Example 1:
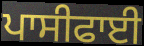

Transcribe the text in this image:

ਪਾਸੀਫਾਈ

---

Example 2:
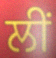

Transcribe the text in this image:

ਲੀਂ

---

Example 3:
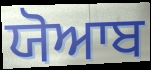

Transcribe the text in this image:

ਯੋਆਬ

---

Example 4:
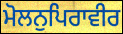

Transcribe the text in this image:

ਮੋਲਨੁਪਿਰਾਵੀਰ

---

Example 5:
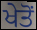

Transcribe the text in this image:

ਖੇਤੋਂ